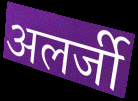
अलर्जी